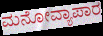
ಮನೋವ್ಯಾಪಾರ